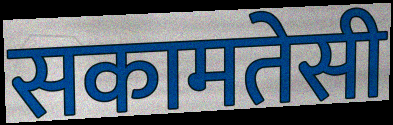
सकामतेसी